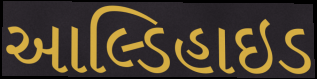
આલ્ડિહાઇડ